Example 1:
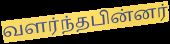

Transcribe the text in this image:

வளர்ந்தபின்னர்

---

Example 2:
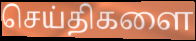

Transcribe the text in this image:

செய்திகளை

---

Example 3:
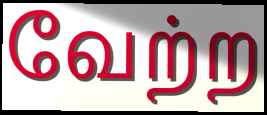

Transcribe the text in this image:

வேற்ற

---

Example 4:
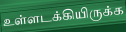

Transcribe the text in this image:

உள்ளடக்கியிருக்க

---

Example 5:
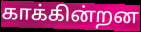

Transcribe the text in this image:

காக்கின்றன